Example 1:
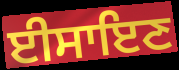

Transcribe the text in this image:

ਈਸਾਇਣ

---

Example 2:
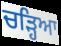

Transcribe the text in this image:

ਚੜ੍ਹਿਆ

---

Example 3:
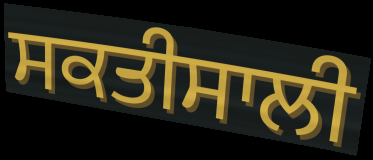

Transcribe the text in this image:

ਸਕਤੀਸਾਲੀ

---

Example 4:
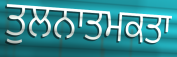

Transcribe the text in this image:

ਤੁਲਨਾਤਮਕਤਾ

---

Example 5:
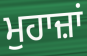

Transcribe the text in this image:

ਮੁਹਾਜ਼ਾਂ